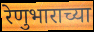
रेणुभाराच्या